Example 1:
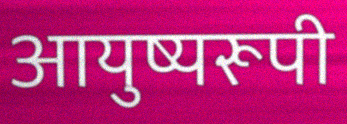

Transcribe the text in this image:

आयुष्यरूपी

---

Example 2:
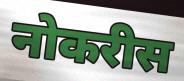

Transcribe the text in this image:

नोकरीस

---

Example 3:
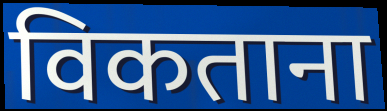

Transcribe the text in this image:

विकताना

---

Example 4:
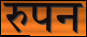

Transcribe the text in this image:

रुपन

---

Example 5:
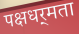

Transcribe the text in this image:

पक्षधर्मता